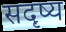
सदृष्य